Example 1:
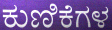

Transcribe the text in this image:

ಕುಣಿಕೆಗಳ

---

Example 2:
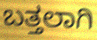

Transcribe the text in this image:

ಬತ್ತಲಾಗಿ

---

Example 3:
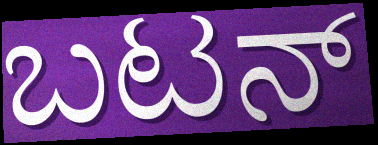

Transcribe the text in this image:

ಬಟನ್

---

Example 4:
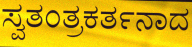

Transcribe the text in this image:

ಸ್ವತಂತ್ರಕರ್ತನಾದ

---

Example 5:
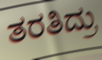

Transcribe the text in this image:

ತರತಿದ್ರು